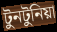
টুনটুনিয়া